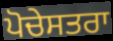
ਪੋਚੇਸਤਰਾ